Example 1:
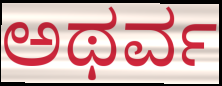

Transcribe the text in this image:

ಅಥರ್ವ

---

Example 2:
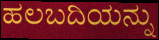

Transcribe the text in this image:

ಹಲಬದಿಯನ್ನು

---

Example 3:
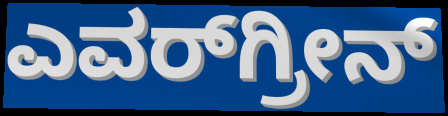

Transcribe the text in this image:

ಎವರ್‌ಗ್ರೀನ್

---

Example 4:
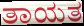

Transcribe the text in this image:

ತಾಯತ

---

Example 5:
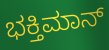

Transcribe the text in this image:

ಭಕ್ತಿಮಾನ್